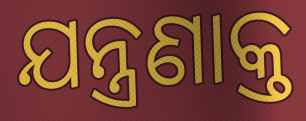
ଯନ୍ତ୍ରଣାକ୍ତ